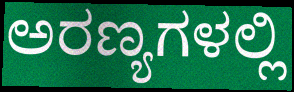
ಅರಣ್ಯಗಳಲ್ಲಿ